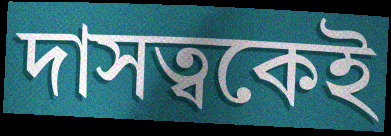
দাসত্বকেই